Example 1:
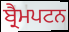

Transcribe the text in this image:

ਬ੍ਰੈਮਪਟਨ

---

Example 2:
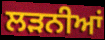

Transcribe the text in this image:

ਲੜਨੀਆਂ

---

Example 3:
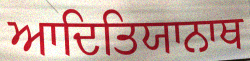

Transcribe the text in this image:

ਆਦਿਤਿਯਾਨਾਥ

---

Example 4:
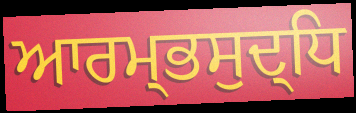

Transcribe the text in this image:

ਆਰਮ੍ਭਸੁਦ੍ਧਿ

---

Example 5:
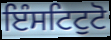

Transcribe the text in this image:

ਇੰਸਟਿਟੁਟੋ